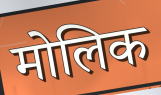
मोलिक